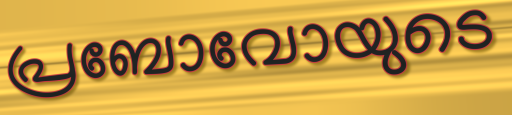
പ്രബോവോയുടെ